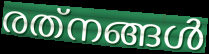
രത്‌നങ്ങൾ